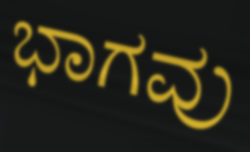
ಭಾಗವು